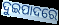
ଦୁଇପାଦରେ